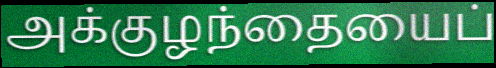
அக்குழந்தையைப்